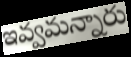
ఇవ్వమన్నారు